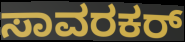
ಸಾವರಕರ್